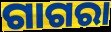
ଗାଗରା